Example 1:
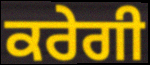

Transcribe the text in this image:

ਕਰੇਗੀ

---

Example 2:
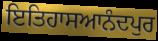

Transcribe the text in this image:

ਇਤਿਹਾਸਆਨੰਦਪੁਰ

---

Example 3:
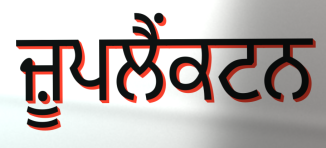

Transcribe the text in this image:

ਜ਼ੂਪਲੈਂਕਟਨ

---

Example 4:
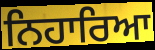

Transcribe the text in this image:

ਨਿਹਾਰਿਆ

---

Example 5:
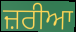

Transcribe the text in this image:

ਜ਼ਰੀਆ